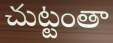
చుట్టంతా